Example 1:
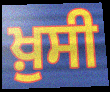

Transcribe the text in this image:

ਖ਼ੁਸੀ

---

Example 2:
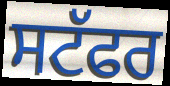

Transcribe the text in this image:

ਸਟੱਫਰ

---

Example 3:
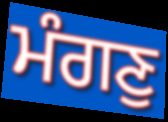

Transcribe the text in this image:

ਮੰਗਣੁ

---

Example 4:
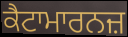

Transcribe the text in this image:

ਕੈਟਾਮਾਰਨਜ਼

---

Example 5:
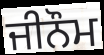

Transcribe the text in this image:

ਜੀਨੌਮ